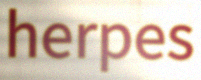
herpes